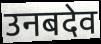
उनबदेव